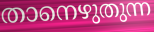
താനെഴുതുന്ന